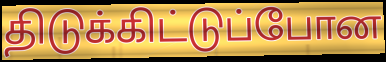
திடுக்கிட்டுப்போன